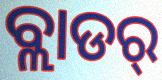
ବ୍ଲାଡର୍